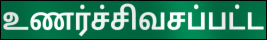
உணர்ச்சிவசப்பட்ட